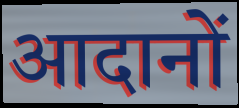
आदानों